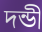
দন্ডী